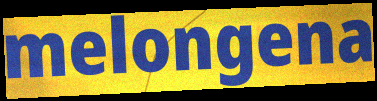
melongena